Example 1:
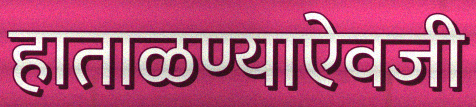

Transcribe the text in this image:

हाताळण्याऐवजी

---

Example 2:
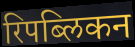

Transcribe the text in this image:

रिपब्लिकन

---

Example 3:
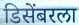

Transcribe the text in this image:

डिसेंबरला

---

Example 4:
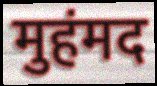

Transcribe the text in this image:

मुहंमद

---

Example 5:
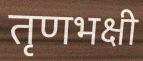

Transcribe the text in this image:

तृणभक्षी